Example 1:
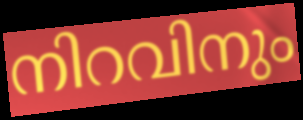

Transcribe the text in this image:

നിറവിനും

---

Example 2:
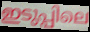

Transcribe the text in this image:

ഇടുപ്പിലെ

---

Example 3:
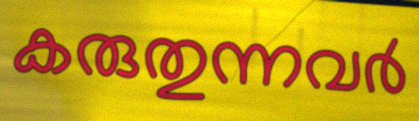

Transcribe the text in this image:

കരുതുന്നവർ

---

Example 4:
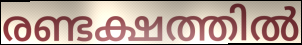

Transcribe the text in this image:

രണ്ടക്ഷത്തിൽ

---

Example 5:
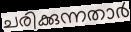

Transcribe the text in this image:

ചരിക്കുന്നതാർ